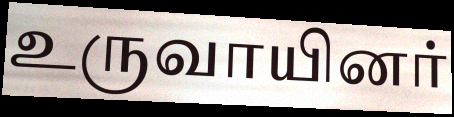
உருவாயினர்